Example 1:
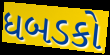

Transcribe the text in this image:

ધબડકો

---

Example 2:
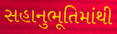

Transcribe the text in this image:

સહાનુભૂતિમાંથી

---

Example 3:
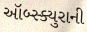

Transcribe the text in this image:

ઑબ્સ્ક્યુરાની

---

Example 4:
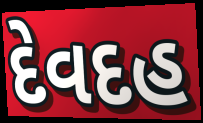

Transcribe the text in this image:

દેવદહ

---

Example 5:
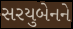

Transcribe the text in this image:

સરયુબેનને